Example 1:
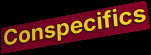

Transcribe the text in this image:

Conspecifics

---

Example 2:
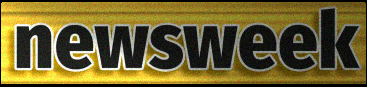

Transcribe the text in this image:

newsweek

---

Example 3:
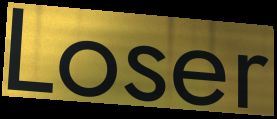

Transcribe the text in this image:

Loser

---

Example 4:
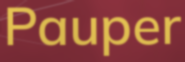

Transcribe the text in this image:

Pauper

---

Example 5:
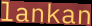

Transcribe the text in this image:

lankan